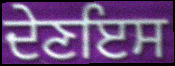
ਦੇਣਇਸ